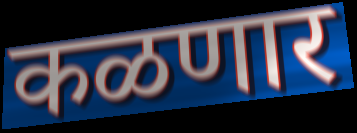
कळणार